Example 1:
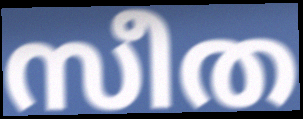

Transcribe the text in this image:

സീത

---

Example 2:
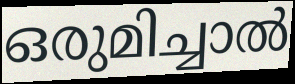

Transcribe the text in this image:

ഒരുമിച്ചാൽ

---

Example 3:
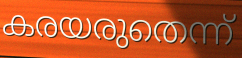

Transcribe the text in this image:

കരയരുതെന്ന്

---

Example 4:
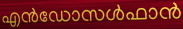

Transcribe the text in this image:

എൻഡോസൾഫാൻ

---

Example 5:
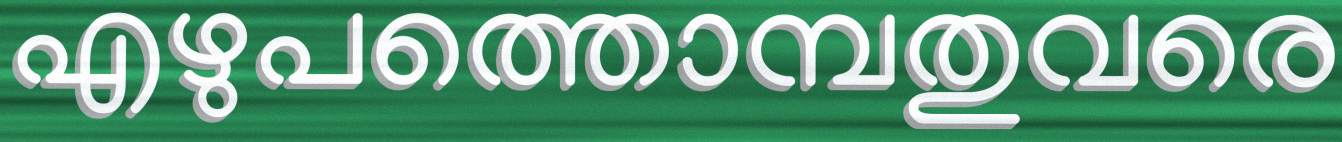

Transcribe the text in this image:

എഴുപത്തൊമ്പതുവരെ